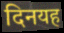
दिनयह